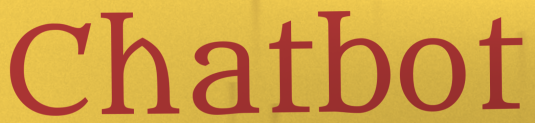
Chatbot